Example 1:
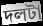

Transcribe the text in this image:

দলটা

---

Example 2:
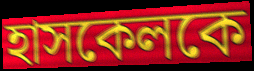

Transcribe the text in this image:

হাসকেলকে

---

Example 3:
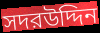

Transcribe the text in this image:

সদরউদ্দিন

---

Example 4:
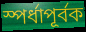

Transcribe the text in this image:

স্পর্ধাপূর্বক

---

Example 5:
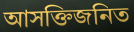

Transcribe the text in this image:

আসক্তিজনিত